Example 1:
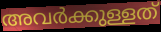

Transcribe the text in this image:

അവർക്കുള്ളത്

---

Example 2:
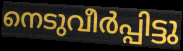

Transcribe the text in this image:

നെടുവീർപ്പിട്ടു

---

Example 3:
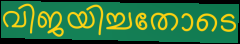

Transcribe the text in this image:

വിജയിച്ചതോടെ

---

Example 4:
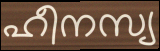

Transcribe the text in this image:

ഹീനസ്യ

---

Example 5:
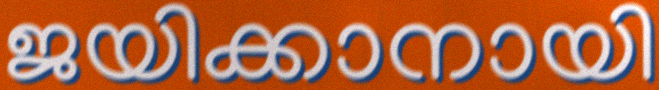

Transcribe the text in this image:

ജയിക്കാനായി